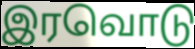
இரவொடு